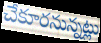
చేకూరనున్నట్లు